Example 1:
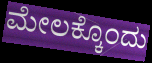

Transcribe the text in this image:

ಮೇಲಕ್ಕೊಂದು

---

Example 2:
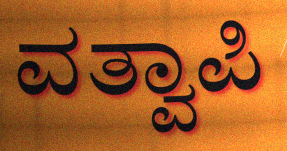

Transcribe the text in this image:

ವತ್ವಾಪಿ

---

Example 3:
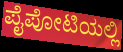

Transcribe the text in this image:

ಪೈಪೋಟಿಯಲ್ಲಿ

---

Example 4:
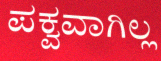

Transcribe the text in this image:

ಪಕ್ವವಾಗಿಲ್ಲ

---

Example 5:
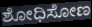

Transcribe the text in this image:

ಶೋಧಿಸೋಣ